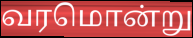
வரமொன்று